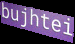
bujhtei